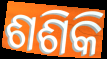
ଶଶିକି